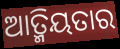
ଆତ୍ମିୟତାର